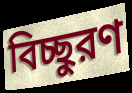
বিচ্ছুরণ